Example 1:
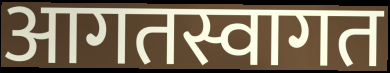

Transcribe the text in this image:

आगतस्वागत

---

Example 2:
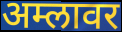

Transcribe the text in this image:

अम्लावर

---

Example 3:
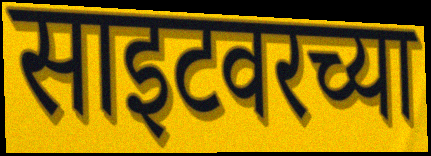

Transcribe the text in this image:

साइटवरच्या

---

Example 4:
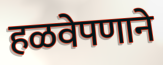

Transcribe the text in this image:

हळवेपणाने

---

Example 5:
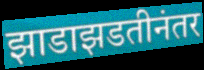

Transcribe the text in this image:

झाडाझडतीनंतर